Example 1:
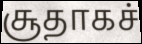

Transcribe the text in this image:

சூதாகச்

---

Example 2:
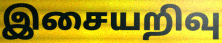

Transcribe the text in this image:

இசையறிவு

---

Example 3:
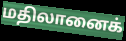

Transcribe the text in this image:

மதிலானைக்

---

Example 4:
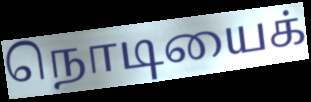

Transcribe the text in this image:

நொடியைக்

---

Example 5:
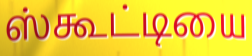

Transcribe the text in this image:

ஸ்கூட்டியை